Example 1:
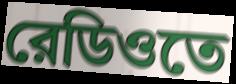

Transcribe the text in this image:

রেডিওতে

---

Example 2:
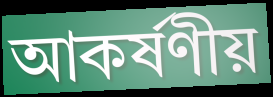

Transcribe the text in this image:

আকর্ষণীয়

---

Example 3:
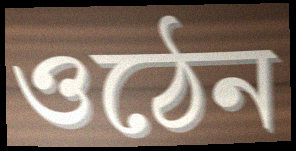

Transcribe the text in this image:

ওঠেন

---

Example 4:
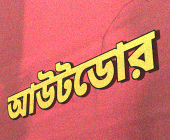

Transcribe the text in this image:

আউটডোর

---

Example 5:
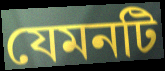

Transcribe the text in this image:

যেমনটি